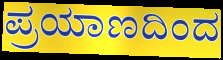
ಪ್ರಯಾಣದಿಂದ